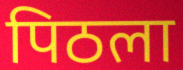
पिठला